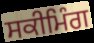
ਸਕੀਮਿੰਗ